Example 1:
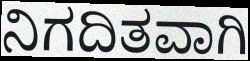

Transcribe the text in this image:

ನಿಗದಿತವಾಗಿ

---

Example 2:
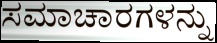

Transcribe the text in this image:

ಸಮಾಚಾರಗಳನ್ನು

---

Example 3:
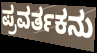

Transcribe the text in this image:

ಪ್ರವರ್ತಕನು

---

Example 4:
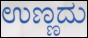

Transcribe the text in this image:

ಉಣ್ಣದು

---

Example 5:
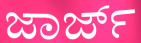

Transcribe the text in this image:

ಜಾರ್ಜ್